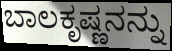
ಬಾಲಕೃಷ್ಣನನ್ನು